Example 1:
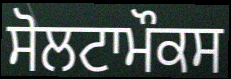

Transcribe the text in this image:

ਸੋਲਟਾਮੌਕਸ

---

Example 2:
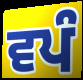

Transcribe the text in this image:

ਵਪੰ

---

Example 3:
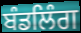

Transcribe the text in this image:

ਬੰਡਲਿੰਗ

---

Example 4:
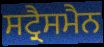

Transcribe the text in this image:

ਸਟ੍ਰੈਸਮੈਨ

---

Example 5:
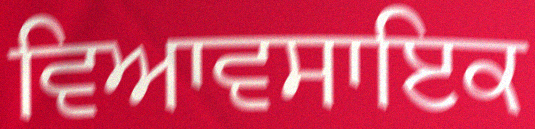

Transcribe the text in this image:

ਵਿਆਵਸਾਇਕ